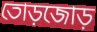
তোড়জোড়